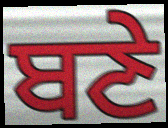
ਬਣੇ